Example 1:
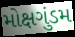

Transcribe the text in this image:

મોક્ષગુંડમ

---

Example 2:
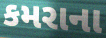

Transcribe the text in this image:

કમરાના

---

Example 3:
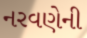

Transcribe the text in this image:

નરવણેની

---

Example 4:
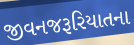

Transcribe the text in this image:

જીવનજરૂરિયાતના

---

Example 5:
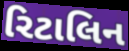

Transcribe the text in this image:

રિટાલિન